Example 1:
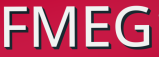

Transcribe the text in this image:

FMEG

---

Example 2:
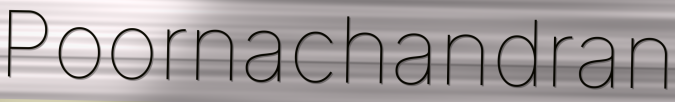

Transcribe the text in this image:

Poornachandran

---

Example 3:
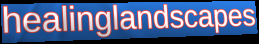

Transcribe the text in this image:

healinglandscapes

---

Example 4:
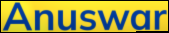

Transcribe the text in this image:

Anuswar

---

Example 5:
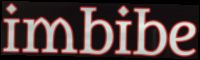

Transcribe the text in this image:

imbibe